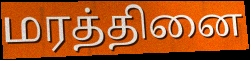
மரத்தினை